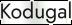
Kodugal